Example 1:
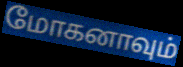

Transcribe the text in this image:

மோகனாவும்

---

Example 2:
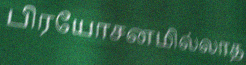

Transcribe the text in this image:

பிரயோசனமில்லாத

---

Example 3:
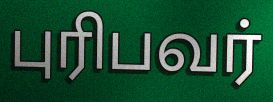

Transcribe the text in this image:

புரிபவர்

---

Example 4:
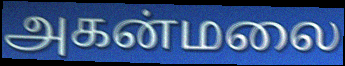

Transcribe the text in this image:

அகன்மலை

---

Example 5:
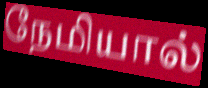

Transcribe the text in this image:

நேமியால்